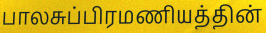
பாலசுப்பிரமணியத்தின்